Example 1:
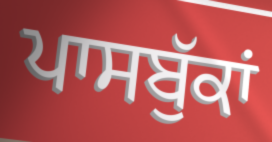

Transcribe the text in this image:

ਪਾਸਬੁੱਕਾਂ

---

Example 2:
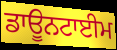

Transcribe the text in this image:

ਡਾਊਨਟਾਈਮ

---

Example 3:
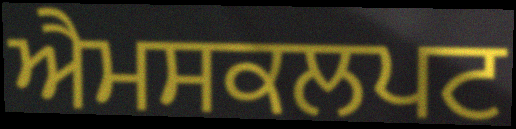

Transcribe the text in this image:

ਐਮਸਕਲਪਟ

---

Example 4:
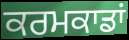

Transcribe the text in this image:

ਕਰਮਕਾਡਾਂ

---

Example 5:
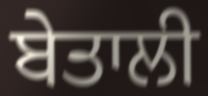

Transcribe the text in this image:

ਬੇਤਾਲੀ